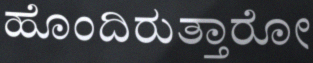
ಹೊಂದಿರುತ್ತಾರೋ